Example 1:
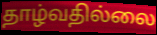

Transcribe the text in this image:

தாழ்வதில்லை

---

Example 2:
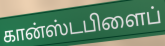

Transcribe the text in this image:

கான்ஸ்டபிளைப்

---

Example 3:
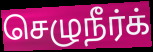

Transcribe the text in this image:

செழுநீர்க்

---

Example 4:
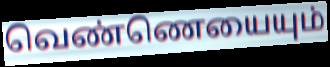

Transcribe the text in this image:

வெண்ணெயையும்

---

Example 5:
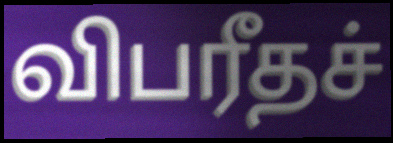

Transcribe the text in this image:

விபரீதச்